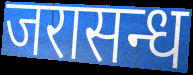
जरासन्ध